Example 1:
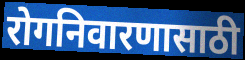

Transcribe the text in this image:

रोगनिवारणासाठी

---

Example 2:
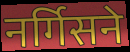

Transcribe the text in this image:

नर्गिसने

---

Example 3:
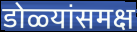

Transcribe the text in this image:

डोळ्यांसमक्ष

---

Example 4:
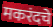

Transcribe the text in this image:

मकरंदचे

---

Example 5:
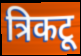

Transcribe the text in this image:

त्रिकटू